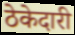
ठेकेदारी